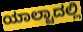
ಯಾಲ್ಟಾದಲ್ಲಿ